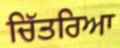
ਚਿੱਤਰਿਆ